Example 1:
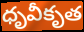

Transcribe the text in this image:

ధృవీకృత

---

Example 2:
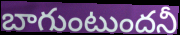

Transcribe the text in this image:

బాగుంటుందనీ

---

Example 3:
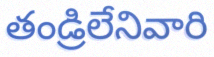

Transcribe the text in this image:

తండ్రిలేనివారి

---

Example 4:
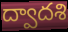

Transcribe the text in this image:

ద్వాదశి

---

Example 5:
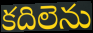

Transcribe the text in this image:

కదిలెను